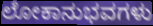
ಲೋಕಾನುಭವಗಳು